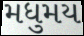
મધુમય